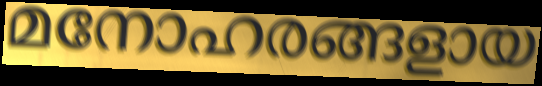
മനോഹരങ്ങളായ